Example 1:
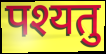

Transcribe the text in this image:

पश्यतु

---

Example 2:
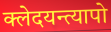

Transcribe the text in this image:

क्लेदयन्त्यापो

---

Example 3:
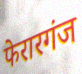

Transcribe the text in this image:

फेरारगंज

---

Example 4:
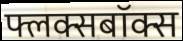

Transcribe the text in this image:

फ्लक्सबॉक्स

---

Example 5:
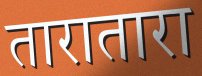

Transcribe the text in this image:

तारातारा